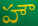
హౌ